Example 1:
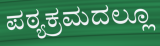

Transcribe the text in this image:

ಪಠ್ಯಕ್ರಮದಲ್ಲೂ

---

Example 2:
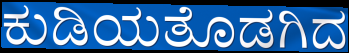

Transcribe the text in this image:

ಕುಡಿಯತೊಡಗಿದ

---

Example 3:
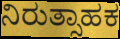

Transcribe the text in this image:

ನಿರುತ್ಸಾಹಕ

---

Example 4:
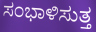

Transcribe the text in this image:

ಸಂಭಾಳಿಸುತ್ತ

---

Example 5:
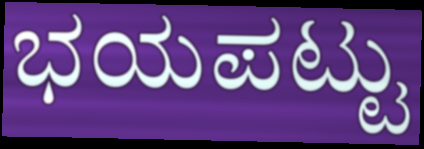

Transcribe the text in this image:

ಭಯಪಟ್ಟು